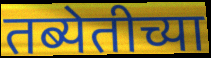
तब्येतीच्या